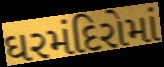
ઘરમંદિરોમાં